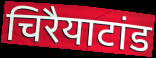
चिरैयाटांड